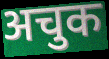
अचुक